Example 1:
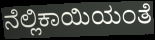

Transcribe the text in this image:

ನೆಲ್ಲಿಕಾಯಿಯಂತೆ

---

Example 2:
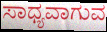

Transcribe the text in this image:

ಸಾಧ್ಯವಾಗುವ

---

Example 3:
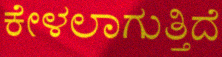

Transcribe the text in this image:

ಕೇಳಲಾಗುತ್ತಿದೆ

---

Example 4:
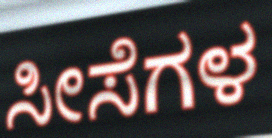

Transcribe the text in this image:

ಸೀಸೆಗಳ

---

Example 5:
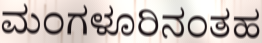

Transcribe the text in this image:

ಮಂಗಳೂರಿನಂತಹ